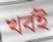
খর্বই